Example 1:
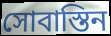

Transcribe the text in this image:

সোবাস্তিন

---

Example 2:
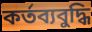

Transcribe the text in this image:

কর্তব্যবুদ্ধি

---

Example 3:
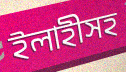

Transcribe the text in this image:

ইলাহীসহ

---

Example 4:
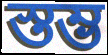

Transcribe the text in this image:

স্তম্ভ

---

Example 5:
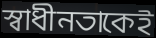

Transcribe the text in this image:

স্বাধীনতাকেই